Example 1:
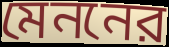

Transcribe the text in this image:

মেননের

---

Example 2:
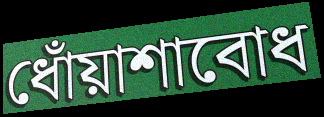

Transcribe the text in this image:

ধোঁয়াশাবোধ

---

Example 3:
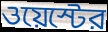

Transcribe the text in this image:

ওয়েস্টের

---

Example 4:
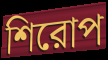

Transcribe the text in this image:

শিরোপ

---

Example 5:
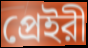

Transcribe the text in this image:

প্রেইরী